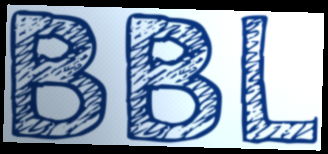
BBL